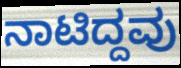
ನಾಟಿದ್ದವು